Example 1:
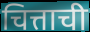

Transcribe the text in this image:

चित्ताची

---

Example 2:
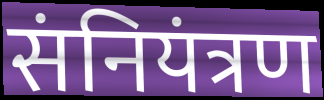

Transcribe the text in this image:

संनियंत्रण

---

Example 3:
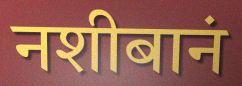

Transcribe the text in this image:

नशीबानं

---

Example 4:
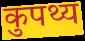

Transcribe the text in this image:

कुपथ्य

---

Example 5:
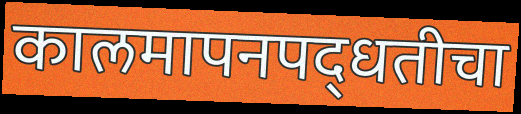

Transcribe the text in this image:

कालमापनपद्धतीचा